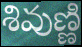
శివుణ్ణి